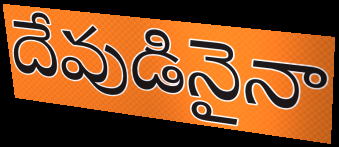
దేవుడినైనా